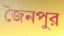
জৈনপুর